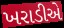
ખરાડીએ